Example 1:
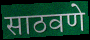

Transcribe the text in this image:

साठवणे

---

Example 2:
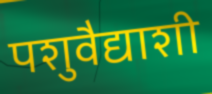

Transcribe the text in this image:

पशुवैद्याशी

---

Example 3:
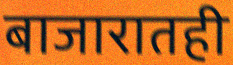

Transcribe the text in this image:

बाजारातही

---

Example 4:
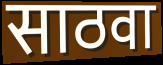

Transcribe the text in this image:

साठवा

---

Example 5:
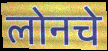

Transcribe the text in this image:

लोनचे